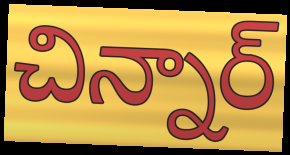
చిన్నార్